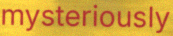
mysteriously